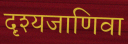
दृश्यजाणिवा